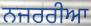
ਨਜਰਰੀਆ